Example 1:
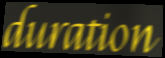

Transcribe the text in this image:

duration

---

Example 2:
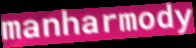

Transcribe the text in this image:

manharmody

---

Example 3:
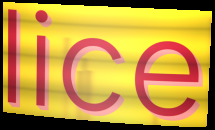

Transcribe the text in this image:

lice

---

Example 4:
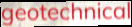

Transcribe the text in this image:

geotechnical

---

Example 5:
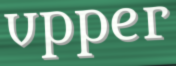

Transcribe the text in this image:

upper